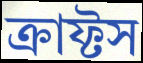
ক্রাফ্টস